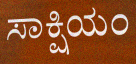
ಸಾಕ್ಷಿಯಂ